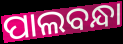
ପାଲବନ୍ଧା